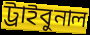
ট্রাইবুনাল